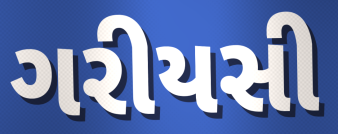
ગરીયસી